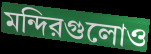
মন্দিরগুলোও